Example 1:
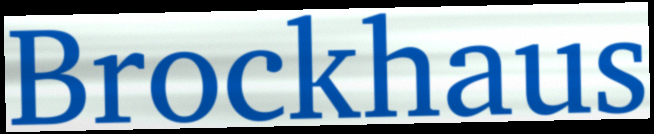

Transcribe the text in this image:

Brockhaus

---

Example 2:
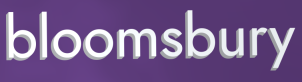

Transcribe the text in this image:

bloomsbury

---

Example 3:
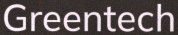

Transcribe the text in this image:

Greentech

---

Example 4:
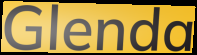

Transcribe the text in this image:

Glenda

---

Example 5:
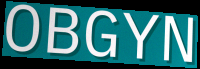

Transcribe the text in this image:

OBGYN